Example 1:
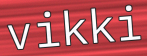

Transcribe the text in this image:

vikki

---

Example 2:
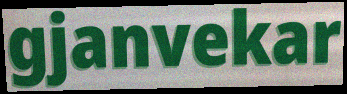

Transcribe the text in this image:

gjanvekar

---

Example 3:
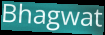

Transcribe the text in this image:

Bhagwat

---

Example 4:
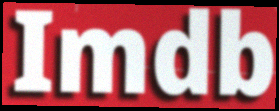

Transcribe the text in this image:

Imdb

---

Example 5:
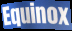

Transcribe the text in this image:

Equinox